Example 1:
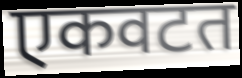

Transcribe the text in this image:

एकवटत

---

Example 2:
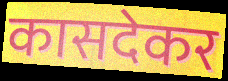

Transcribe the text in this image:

कासदेकर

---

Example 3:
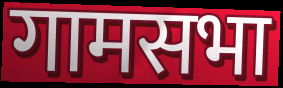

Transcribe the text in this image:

गामसभा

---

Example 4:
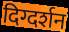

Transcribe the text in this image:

दिग्दर्शन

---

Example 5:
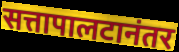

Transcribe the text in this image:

सत्तापालटानंतर